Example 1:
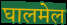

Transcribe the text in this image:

घालमेल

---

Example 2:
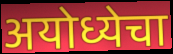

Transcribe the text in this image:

अयोध्येचा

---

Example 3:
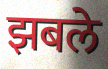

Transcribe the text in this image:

झबले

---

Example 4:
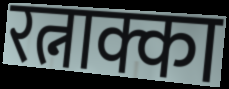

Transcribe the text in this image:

रत्नाक्का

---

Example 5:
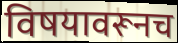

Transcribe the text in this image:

विषयावरूनच